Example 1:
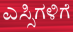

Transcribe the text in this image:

ಎಸ್ಸಿಗಳಿಗೆ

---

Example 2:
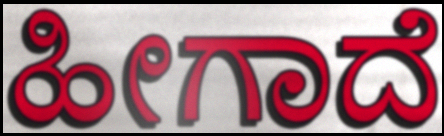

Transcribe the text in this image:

ಹೀಗಾದೆ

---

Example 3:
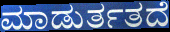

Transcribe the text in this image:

ಮಾಡುರ್ತತದೆ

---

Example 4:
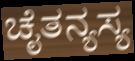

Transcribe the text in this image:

ಚೈತನ್ಯಸ್ಯ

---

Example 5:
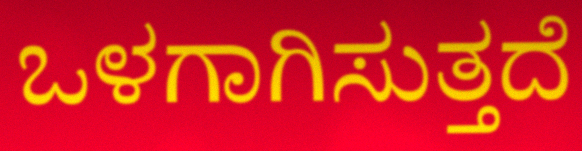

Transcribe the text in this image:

ಒಳಗಾಗಿಸುತ್ತದೆ